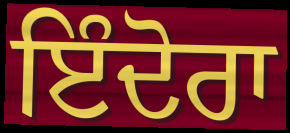
ਇੰਦੋਰਾ